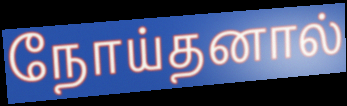
நோய்தனால்